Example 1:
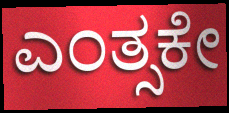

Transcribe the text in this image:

ಎಂತ್ಸಕೇ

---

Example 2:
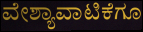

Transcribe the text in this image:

ವೇಶ್ಯಾವಾಟಿಕೆಗೂ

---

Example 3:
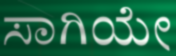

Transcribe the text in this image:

ಸಾಗಿಯೇ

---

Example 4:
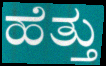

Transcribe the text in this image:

ಹೆತ್ತು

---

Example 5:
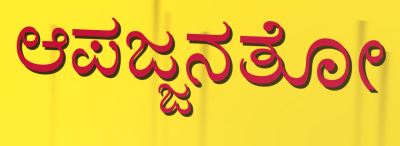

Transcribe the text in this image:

ಆಪಜ್ಜನತೋ